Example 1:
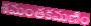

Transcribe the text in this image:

శమంతకమణిం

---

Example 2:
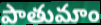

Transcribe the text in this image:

పాతుమాం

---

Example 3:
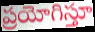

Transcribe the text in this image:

ప్రయోగిస్తూ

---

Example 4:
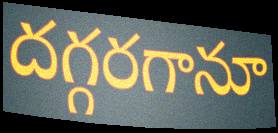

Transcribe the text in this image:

దగ్గరగానూ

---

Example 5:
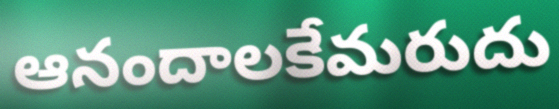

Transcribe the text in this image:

ఆనందాలకేమరుదు